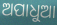
ଅପାଧୁଆ